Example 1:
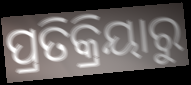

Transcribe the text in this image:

ପ୍ରତିକ୍ରିୟାରୁ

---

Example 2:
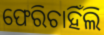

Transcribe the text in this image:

ଫେରିଚାହିଁଲି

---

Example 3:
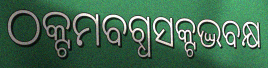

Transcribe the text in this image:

ଠକ୍ଟମବଗ୍ଧସକ୍ଟଦ୍ଭବକ୍ଷ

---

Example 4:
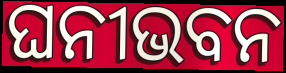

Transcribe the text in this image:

ଘନୀଭବନ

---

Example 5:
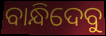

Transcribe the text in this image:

ବାନ୍ଧିଦେବୁ